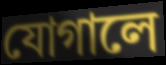
যোগালে